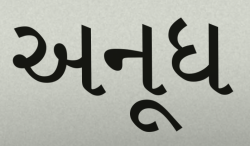
અનૂધ